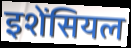
इशेंसियल